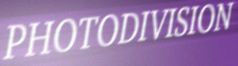
PHOTODIVISION